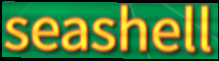
seashell